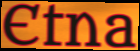
Etna